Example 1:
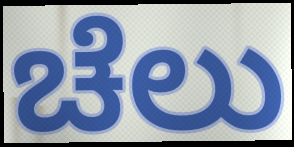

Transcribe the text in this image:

ಚೆಲು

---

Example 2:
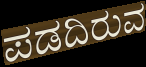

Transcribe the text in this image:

ಪಡದಿರುವ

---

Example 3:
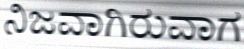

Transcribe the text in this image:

ನಿಜವಾಗಿರುವಾಗ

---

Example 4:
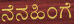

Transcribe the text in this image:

ನೆನಹಿಂಗೆ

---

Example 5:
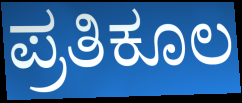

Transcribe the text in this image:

ಪ್ರತಿಕೂಲ